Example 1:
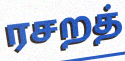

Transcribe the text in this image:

ரசறத்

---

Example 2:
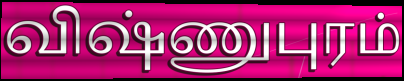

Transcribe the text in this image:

விஷ்ணுபுரம்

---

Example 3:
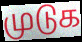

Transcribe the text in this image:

முடுக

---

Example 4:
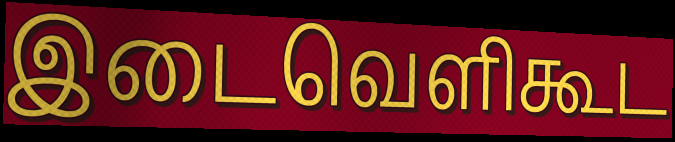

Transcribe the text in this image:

இடைவெளிகூட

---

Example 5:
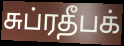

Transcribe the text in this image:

சுப்ரதீபக்